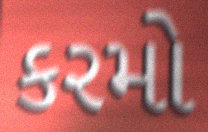
કરમો